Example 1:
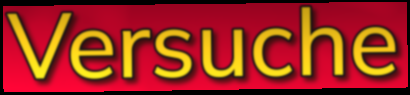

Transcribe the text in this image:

Versuche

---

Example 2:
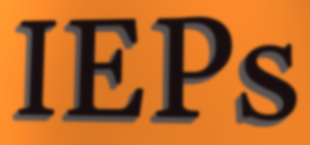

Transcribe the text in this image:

IEPs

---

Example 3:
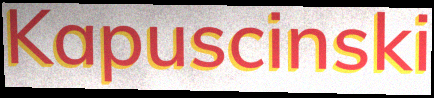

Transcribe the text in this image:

Kapuscinski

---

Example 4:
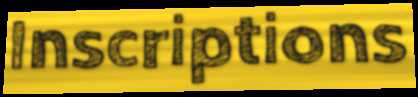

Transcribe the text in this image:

Inscriptions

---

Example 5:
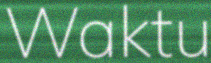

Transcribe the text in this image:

Waktu